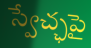
స్వేచ్ఛపై